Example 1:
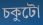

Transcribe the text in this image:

চকুটো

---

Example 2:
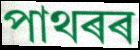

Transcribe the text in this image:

পাথৰৰ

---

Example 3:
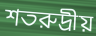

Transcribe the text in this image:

শতৰুদ্ৰীয়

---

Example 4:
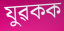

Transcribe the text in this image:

যুৱকক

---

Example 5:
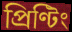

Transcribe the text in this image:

প্ৰিণ্টিং